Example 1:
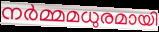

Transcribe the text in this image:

നർമ്മമധുരമായി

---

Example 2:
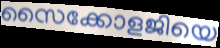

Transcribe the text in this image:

സൈക്കോളജിയെ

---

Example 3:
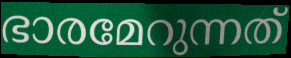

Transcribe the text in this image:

ഭാരമേറുന്നത്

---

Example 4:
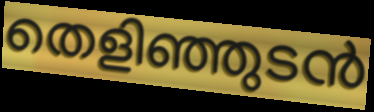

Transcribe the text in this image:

തെളിഞ്ഞുടൻ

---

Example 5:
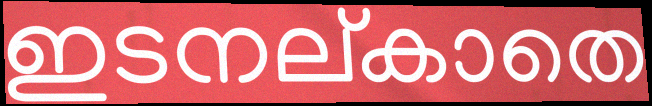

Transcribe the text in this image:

ഇടനല്കാതെ